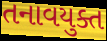
તનાવયુક્ત